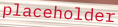
placeholder